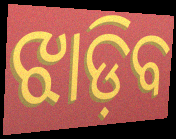
ଝାଡ଼ିବ